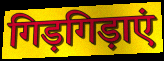
गिड़गिड़ाएं